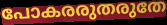
പോകരരുതരുതേ